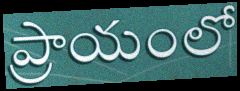
ప్రాయంలో